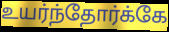
உயர்ந்தோர்க்கே